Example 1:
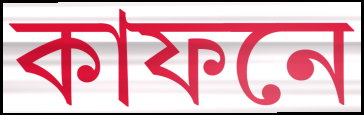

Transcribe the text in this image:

কাফনে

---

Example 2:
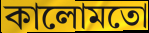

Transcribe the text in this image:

কালোমতো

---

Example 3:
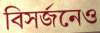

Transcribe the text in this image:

বিসর্জনেও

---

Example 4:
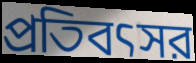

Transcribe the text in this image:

প্রতিবৎসর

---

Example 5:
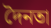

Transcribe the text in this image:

দৈনতা